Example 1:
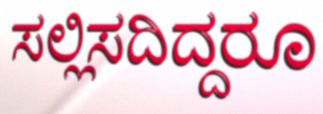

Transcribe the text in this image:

ಸಲ್ಲಿಸದಿದ್ದರೂ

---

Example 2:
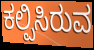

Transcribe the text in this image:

ಕಲ್ಪಿಸಿರುವ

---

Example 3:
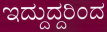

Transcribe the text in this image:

ಇದ್ದುದ್ದರಿಂದ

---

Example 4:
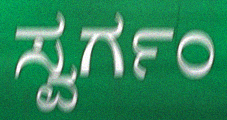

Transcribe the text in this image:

ಸ್ವರ್ಗಂ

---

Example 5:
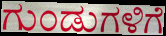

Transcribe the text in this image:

ಗುಂಡುಗಳಿಗೆ